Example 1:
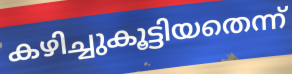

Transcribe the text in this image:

കഴിച്ചുകൂട്ടിയതെന്ന്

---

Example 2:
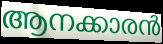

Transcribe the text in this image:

ആനക്കാരൻ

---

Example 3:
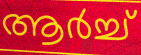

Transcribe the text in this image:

ആർച്ച്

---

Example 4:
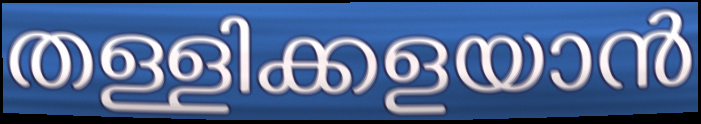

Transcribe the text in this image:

തള്ളിക്കളയാൻ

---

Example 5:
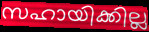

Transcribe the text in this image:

സഹായിക്കില്ല